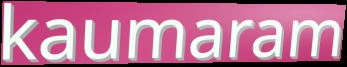
kaumaram